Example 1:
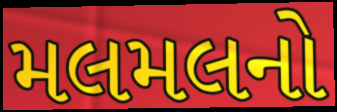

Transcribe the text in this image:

મલમલનો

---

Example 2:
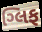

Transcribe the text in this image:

ગ્લિફ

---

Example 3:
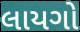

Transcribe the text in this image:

લાયગો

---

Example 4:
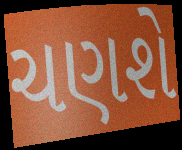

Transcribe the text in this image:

ચણશે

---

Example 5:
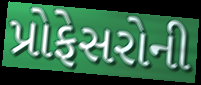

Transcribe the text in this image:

પ્રોફેસરોની